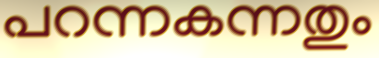
പറന്നകന്നതും